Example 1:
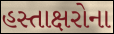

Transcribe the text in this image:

હસ્તાક્ષરોના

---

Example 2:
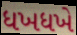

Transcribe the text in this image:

ધખધખે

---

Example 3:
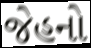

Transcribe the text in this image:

જેહનો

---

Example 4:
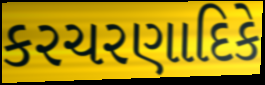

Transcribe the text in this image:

કરચરણાદિકે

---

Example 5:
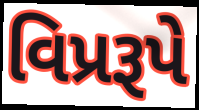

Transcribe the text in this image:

વિપ્રરૂપે